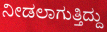
ನೀಡಲಾಗುತ್ತಿದ್ದು